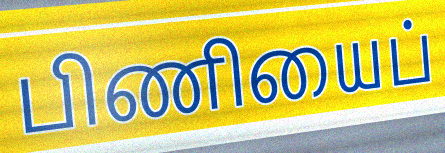
பிணியைப்